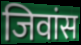
जिवांस